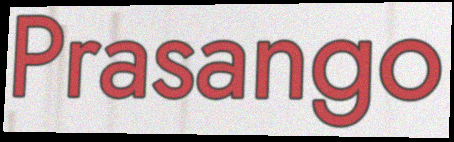
Prasango